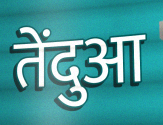
तेंदुआ